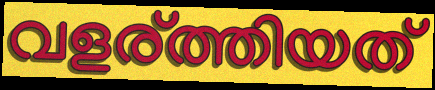
വളര്ത്തിയത്